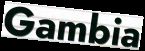
Gambia